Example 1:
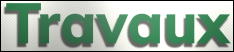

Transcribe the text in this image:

Travaux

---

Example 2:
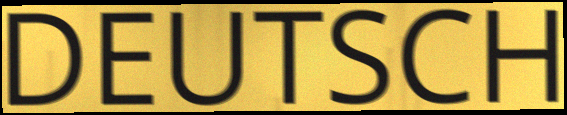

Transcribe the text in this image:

DEUTSCH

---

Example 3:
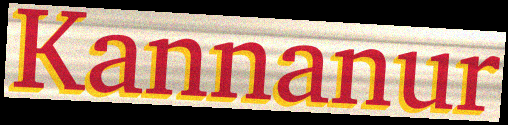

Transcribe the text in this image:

Kannanur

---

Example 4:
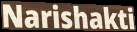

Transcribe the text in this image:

Narishakti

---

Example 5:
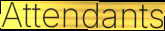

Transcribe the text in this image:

Attendants